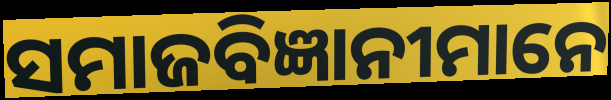
ସମାଜବିଜ୍ଞାନୀମାନେ